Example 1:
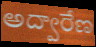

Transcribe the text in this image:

అద్వారేణ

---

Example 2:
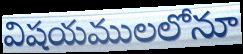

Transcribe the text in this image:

విషయములలోనూ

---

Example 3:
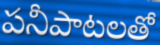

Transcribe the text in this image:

పనీపాటలతో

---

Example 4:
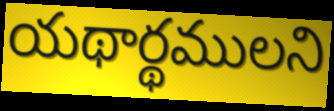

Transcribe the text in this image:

యథార్థములని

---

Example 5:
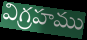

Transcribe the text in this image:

విగ్రహము